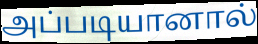
அப்படியானால்